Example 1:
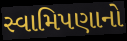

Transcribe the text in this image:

સ્વામિપણાનો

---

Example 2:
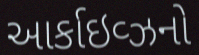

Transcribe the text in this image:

આર્કાઇવ્ઝનો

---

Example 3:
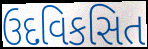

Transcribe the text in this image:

ઉદવિકસિત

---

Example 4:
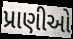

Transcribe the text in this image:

પ્રાણીઓ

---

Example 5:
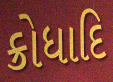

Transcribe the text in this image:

ક્રોધાદિ